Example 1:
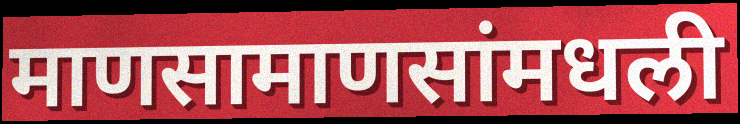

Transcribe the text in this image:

माणसामाणसांमधली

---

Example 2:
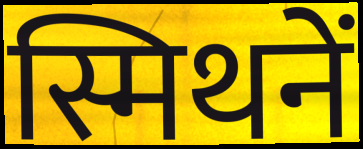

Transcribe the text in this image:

स्मिथनें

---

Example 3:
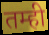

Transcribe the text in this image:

तम्ही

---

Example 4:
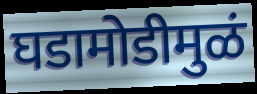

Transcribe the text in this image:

घडामोडीमुळं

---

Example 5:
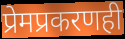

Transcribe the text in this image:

प्रेमप्रकरणही